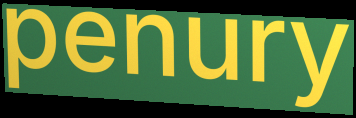
penury